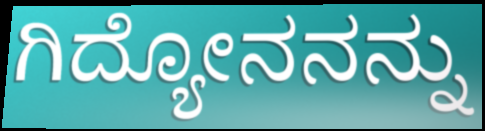
ಗಿದ್ಯೋನನನ್ನು